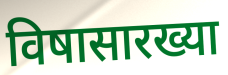
विषासारख्या